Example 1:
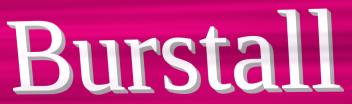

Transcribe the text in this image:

Burstall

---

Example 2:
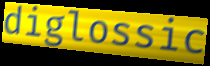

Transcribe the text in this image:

diglossic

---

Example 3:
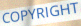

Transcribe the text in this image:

COPYRIGHT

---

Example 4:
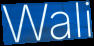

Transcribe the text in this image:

Wali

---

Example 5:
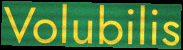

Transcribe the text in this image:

Volubilis